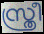
സ്ത്രീ